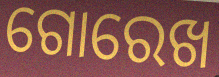
ଗୋରେଖ